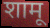
शामू